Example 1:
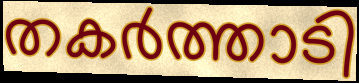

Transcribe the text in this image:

തകർത്താടി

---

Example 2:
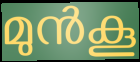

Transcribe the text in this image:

മുൻകൂ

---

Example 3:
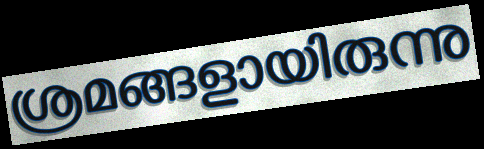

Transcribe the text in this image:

ശ്രമങ്ങളായിരുന്നു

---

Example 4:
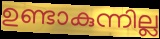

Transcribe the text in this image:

ഉണ്ടാകുന്നില്ല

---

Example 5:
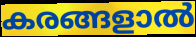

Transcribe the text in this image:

കരങ്ങളാൽ